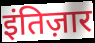
इंतिज़ार